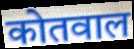
कोतवाल